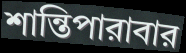
শান্তিপারাবার